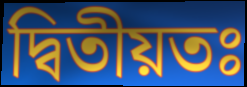
দ্বিতীয়তঃ